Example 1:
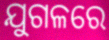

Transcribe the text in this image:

ଯୁଗଳରେ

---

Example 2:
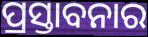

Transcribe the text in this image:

ପ୍ରସ୍ତାବନାର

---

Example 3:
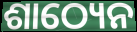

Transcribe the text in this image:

ଶାଠ୍ୟେନ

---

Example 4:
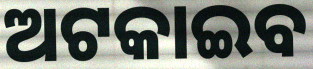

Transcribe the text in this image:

ଅଟକାଇବ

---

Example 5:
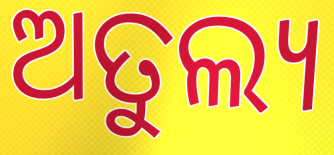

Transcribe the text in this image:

ଅତୁଲ୍ୟ